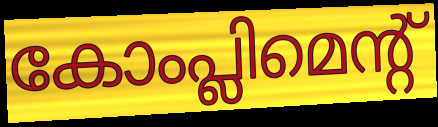
കോംപ്ലിമെന്റ്